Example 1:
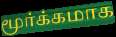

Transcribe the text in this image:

மூர்க்கமாக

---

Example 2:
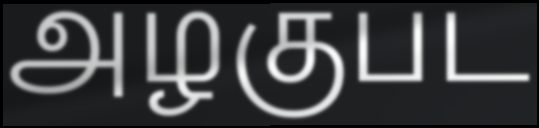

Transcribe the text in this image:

அழகுபட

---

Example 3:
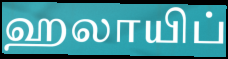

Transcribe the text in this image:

ஹலாயிப்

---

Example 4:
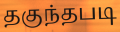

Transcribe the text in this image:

தகுந்தபடி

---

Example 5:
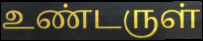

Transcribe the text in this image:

உண்டருள்